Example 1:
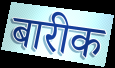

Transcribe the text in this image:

बारीक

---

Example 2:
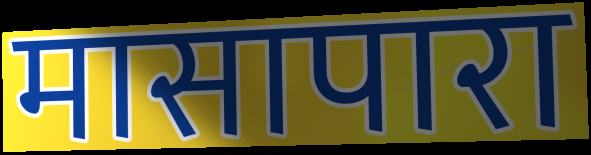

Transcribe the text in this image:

मासापारा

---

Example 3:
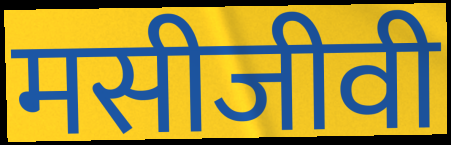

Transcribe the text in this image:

मसीजीवी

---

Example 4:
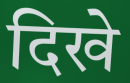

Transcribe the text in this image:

दिखे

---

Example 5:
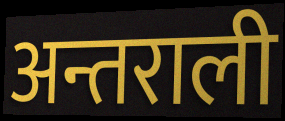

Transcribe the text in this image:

अन्तराली